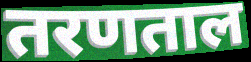
तरणताल